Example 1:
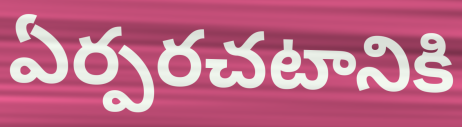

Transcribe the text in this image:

ఏర్పరచటానికి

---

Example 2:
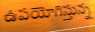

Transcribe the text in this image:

ఉపయోగిస్తున్న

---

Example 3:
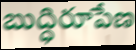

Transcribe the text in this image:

బుద్ధిరూపేణ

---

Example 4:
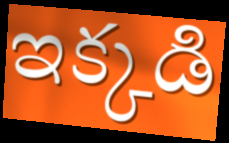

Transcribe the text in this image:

ఇక్కడి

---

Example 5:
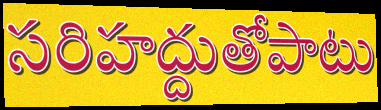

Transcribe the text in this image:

సరిహద్దుతోపాటు